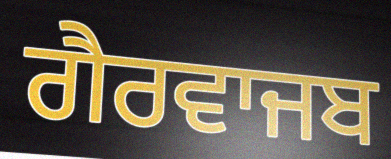
ਗੈਰਵਾਜਬ